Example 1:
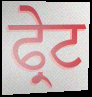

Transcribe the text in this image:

ਫ੍ਰੇਟ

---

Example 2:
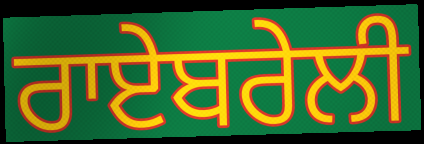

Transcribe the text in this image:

ਰਾਏਬਰੇਲੀ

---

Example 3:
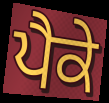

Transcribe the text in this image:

ਪੈਕੇ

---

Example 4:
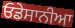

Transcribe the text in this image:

ਓਡੇਸਾਨੀਆ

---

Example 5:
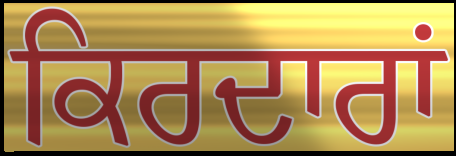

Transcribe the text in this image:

ਕਿਰਦਾਰਾਂ